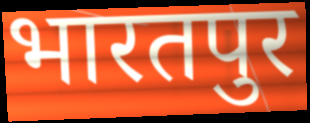
भारतपुर